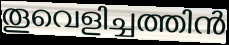
തൂവെളിച്ചത്തിൻ